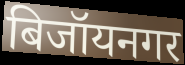
बिजॉयनगर